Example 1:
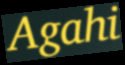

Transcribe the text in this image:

Agahi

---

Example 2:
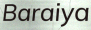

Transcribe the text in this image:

Baraiya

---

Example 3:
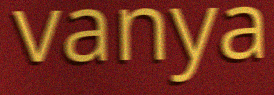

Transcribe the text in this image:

vanya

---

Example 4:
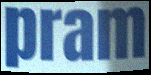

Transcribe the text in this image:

pram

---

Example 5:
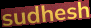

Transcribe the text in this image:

sudhesh